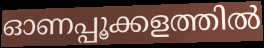
ഓണപ്പൂക്കളത്തിൽ